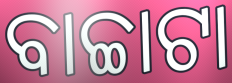
ବାଚ୍ଚାଟା